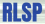
RLSP